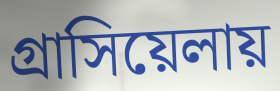
গ্রাসিয়েলায়